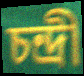
চন্দ্রী